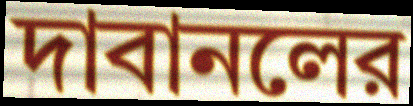
দাবানলের